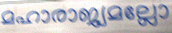
മഹാരാജ്യമല്ലോ